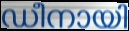
ഡീനായി